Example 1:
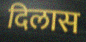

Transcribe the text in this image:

दिलास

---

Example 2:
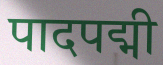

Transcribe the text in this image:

पादपद्मी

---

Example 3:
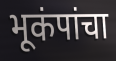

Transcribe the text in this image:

भूकंपांचा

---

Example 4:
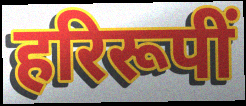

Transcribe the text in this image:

हरिरूपीं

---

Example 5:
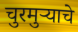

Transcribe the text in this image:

चुरमुऱ्याचे